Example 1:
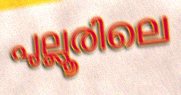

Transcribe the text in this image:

പുല്ലൂരിലെ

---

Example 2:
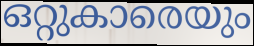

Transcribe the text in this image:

ഒറ്റുകാരെയും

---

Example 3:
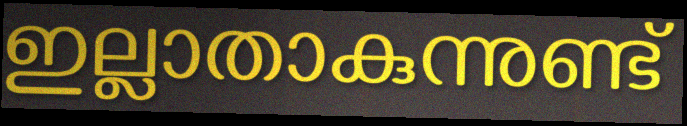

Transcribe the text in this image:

ഇല്ലാതാകുന്നുണ്ട്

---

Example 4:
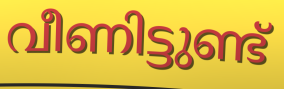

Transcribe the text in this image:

വീണിട്ടുണ്ട്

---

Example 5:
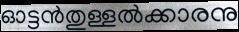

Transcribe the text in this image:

ഓട്ടൻതുള്ളൽക്കാരനു